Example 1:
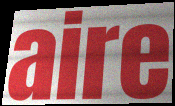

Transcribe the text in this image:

aire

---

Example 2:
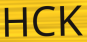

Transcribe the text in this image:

HCK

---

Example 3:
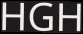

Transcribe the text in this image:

HGH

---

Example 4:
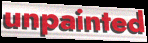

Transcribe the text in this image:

unpainted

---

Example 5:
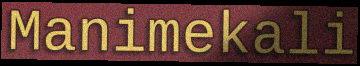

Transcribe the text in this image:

Manimekali